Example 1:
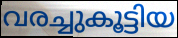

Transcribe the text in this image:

വരച്ചുകൂട്ടിയ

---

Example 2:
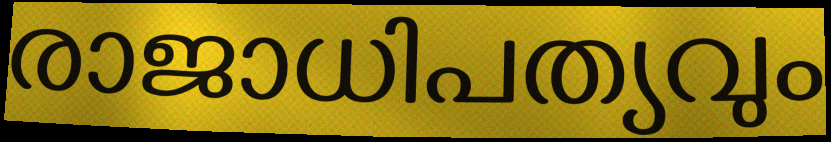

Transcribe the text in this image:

രാജാധിപത്യവും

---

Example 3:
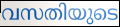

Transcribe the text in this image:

വസതിയുടെ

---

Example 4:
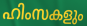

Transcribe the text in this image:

ഹിംസകളും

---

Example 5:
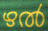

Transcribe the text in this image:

ഴൽ